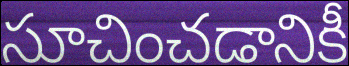
సూచించడానికీ